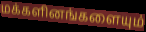
மக்களினங்களையும்